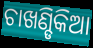
ଚାଖଣ୍ଡିକିଆ